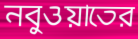
নবুওয়াতের